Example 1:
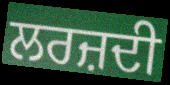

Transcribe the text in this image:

ਲਰਜ਼ਦੀ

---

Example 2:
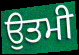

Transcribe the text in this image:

ਉਤਮੀ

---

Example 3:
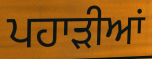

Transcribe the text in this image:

ਪਹਾਡ਼ੀਆਂ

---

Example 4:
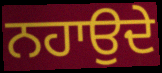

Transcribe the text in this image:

ਨਹਾਉਦੇ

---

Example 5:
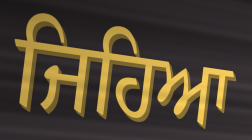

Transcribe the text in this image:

ਜਿਹਿਆ